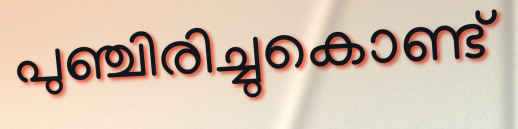
പുഞ്ചിരിച്ചുകൊണ്ട്